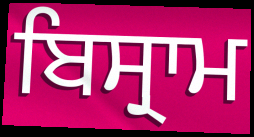
ਬਿਸ੍ਰਾਮ